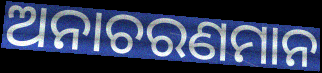
ଅନାଚରଣମାନ